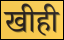
खीही